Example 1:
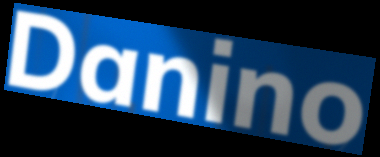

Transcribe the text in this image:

Danino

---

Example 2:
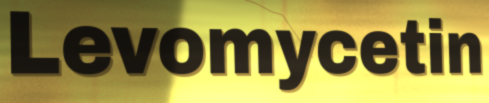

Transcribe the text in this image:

Levomycetin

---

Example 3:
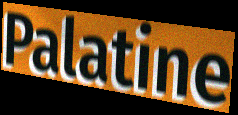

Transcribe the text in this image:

Palatine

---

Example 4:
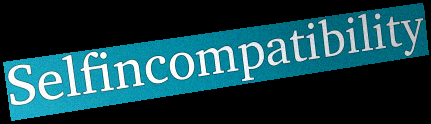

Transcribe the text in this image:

Selfincompatibility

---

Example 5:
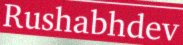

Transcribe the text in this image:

Rushabhdev